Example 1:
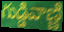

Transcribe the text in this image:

గుడ్డివాణ్ణి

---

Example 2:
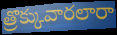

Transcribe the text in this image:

త్రొక్కువారలారా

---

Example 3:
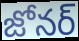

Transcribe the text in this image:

జోనర్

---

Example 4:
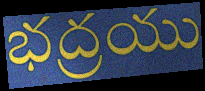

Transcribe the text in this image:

భద్రయు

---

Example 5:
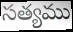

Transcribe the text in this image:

సత్యము